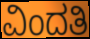
ವಿಂದತಿ